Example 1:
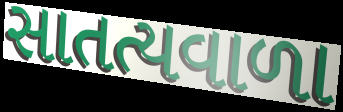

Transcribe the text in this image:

સાતત્યવાળા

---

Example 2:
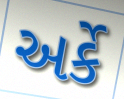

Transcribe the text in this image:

અર્કે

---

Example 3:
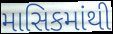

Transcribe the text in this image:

માસિકમાંથી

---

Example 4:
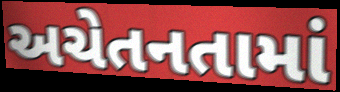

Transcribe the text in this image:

અચેતનતામાં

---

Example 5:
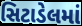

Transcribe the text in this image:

સિટાડેલમાં